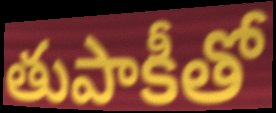
తుపాకీతో